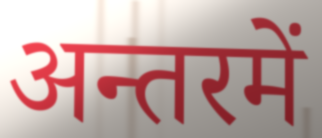
अन्तरमें